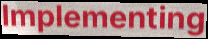
Implementing